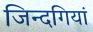
जिन्दगियां